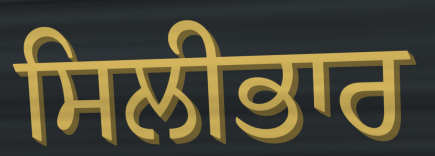
ਸਿਲੀਭਾਰ